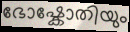
ഭോഷ്കോതിയും